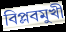
বিপ্লবমুখী